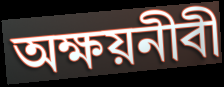
অক্ষয়নীবী